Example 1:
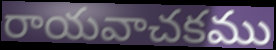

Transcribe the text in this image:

రాయవాచకము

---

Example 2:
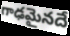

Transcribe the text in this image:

గాఢమైనదే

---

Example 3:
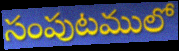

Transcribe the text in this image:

సంపుటములో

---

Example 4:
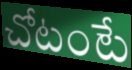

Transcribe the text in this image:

చోటంటే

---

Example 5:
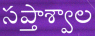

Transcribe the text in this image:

సప్తాశ్వాల